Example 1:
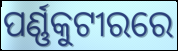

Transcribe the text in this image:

ପର୍ଣ୍ଣକୁଟୀରରେ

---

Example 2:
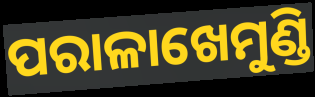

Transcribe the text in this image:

ପରାଳାଖେମୁଣ୍ଡି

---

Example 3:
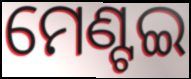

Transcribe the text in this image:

ମେଣ୍ଟଇ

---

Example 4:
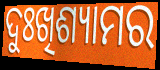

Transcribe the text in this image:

ଦୁଃଖିଶ୍ୟାମର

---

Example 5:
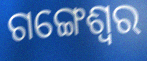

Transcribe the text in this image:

ଗଙ୍ଗେଶ୍ଵର